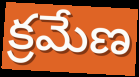
క్రమేణ